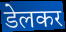
डेलकर